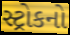
સ્ટ્રોકનો